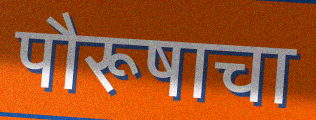
पौरूषाचा